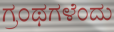
ಗ್ರಂಥಗಳೆಂದು